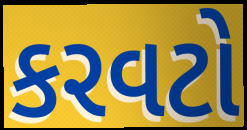
કરવટો